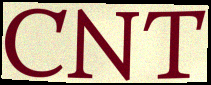
CNT